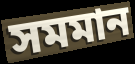
সমমান